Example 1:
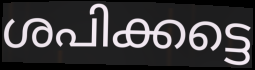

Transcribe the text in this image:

ശപിക്കട്ടെ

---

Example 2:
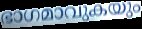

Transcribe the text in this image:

ഭാഗമാവുകയും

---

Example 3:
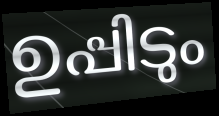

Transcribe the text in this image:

ഉപ്പിടും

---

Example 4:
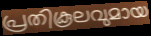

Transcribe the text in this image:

പ്രതികൂലവുമായ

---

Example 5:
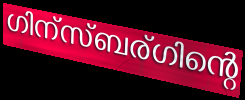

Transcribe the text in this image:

ഗിന്സ്ബര്ഗിന്റെ